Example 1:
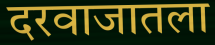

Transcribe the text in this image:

दरवाजातला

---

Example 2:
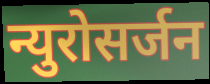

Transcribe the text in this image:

न्युरोसर्जन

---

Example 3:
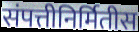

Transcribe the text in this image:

संपत्तीनिर्मितीस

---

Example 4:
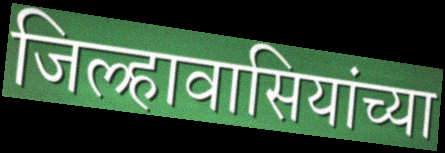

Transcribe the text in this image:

जिल्हावासियांच्या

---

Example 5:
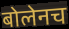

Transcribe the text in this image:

बोलेनच